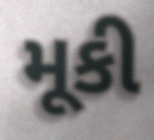
મૂકી